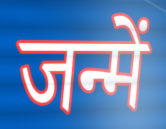
जन्में